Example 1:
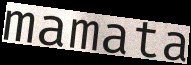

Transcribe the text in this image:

mamata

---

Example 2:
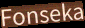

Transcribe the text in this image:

Fonseka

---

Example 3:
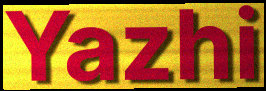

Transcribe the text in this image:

Yazhi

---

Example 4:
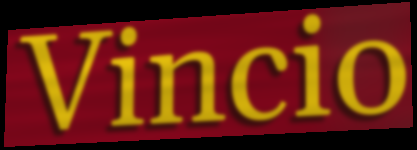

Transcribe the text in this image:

Vincio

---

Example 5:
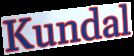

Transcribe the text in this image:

Kundal